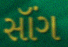
સૉંગ